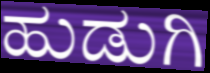
ಹುಡುಗಿ